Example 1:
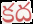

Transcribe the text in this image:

కద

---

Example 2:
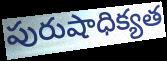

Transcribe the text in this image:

పురుషాధిక్యత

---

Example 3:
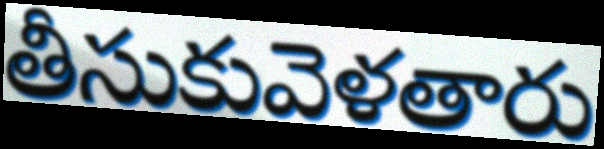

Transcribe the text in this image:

తీసుకువెళతారు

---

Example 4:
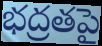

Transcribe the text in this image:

భద్రతపై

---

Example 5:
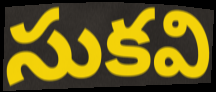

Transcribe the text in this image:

సుకవి